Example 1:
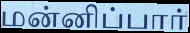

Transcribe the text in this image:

மன்னிப்பார்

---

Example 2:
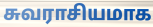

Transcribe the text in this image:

சுவராசியமாக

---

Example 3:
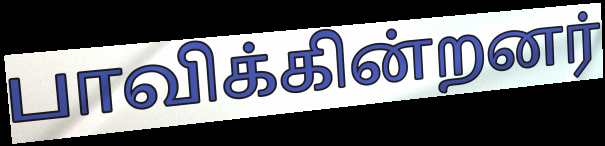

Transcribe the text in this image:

பாவிக்கின்றனர்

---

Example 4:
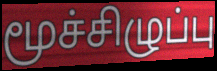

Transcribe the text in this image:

மூச்சிழுப்பு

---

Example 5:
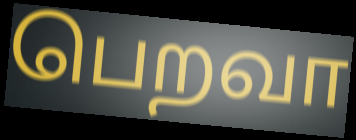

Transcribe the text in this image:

பெறவா